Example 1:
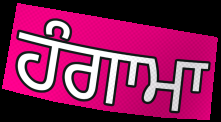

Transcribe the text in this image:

ਹੰਗਾਮਾ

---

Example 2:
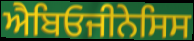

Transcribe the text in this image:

ਐਬਿਓਜੀਨੇਸਿਸ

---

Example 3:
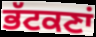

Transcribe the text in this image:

ਭੱਟਕਣਾਂ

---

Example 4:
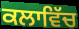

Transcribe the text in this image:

ਕਲਾਵਿੱਚ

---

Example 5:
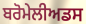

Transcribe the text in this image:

ਬਰੋਮੇਲੀਅਡਸ